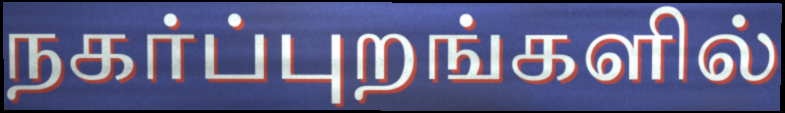
நகர்ப்புறங்களில்